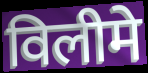
विलीमे